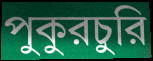
পুকুরচুরি